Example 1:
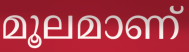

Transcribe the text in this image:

മൂലമാണ്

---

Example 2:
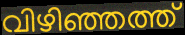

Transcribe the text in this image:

വിഴിഞ്ഞത്ത്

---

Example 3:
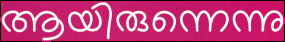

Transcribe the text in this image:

ആയിരുന്നെന്നു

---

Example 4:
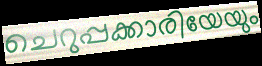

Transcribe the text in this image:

ചെറുപ്പക്കാരിയേയും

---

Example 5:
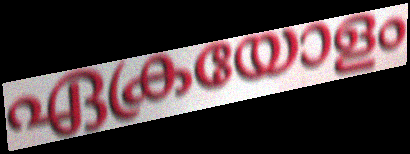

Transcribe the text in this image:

ഏക്രയോളം